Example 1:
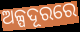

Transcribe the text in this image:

ଅଳ୍ପଦୂରରେ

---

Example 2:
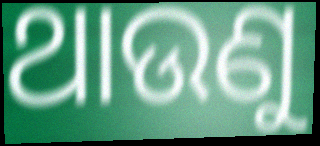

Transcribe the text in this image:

ଥାଉଣୁ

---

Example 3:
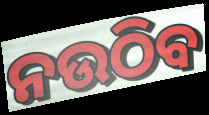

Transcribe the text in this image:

ନଉଠିବ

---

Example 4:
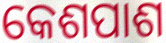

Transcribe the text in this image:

କେଶପାଶ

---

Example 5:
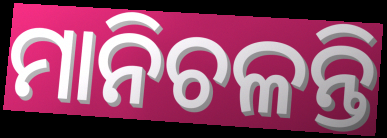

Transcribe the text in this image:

ମାନିଚଳନ୍ତି